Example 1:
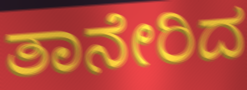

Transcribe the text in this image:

ತಾನೇರಿದ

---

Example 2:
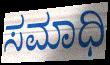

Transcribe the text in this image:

ಸಮಾಧಿ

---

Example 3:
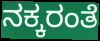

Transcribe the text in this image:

ನಕ್ಕರಂತೆ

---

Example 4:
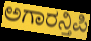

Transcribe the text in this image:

ಅಗಾರನ್ತಿಪಿ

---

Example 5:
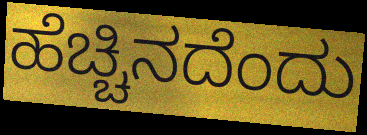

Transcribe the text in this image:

ಹೆಚ್ಚಿನದೆಂದು